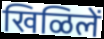
खिळिलें